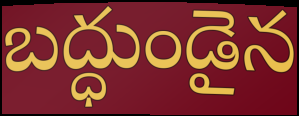
బద్ధుండైన